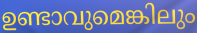
ഉണ്ടാവുമെങ്കിലും